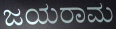
ಜಯರಾಮ